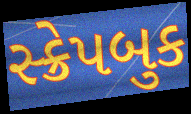
સ્ક્રેપબુક